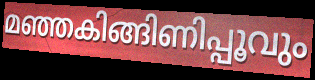
മഞ്ഞകിങ്ങിണിപ്പൂവും